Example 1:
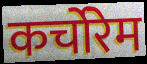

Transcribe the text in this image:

कर्चोरेम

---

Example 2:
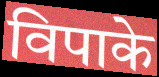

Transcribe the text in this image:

विपाके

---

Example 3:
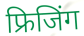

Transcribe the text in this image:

फ्रिजिंग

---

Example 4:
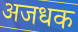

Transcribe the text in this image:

अजधक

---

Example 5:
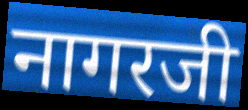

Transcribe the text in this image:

नागरजी